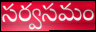
సర్వసమం